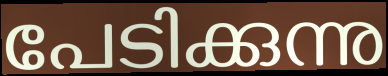
പേടിക്കുന്നു